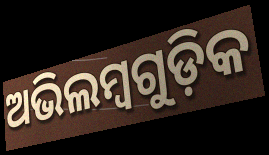
ଅଭିଲମ୍ବଗୁଡ଼ିକ